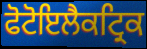
ਫੋਟੋਇਲੈਕਟ੍ਰਿਕ